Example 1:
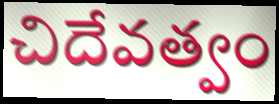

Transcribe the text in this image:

చిదేవత్వం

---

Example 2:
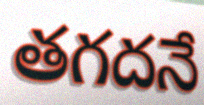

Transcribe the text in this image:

తగదనే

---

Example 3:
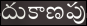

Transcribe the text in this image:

దుకాణపు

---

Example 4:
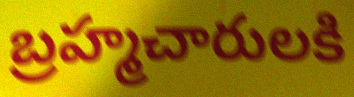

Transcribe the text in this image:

బ్రహ్మచారులకి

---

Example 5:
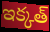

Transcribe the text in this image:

ఇక్కత్